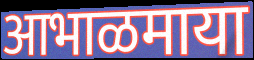
आभाळमाया